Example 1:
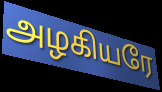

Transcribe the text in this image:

அழகியரே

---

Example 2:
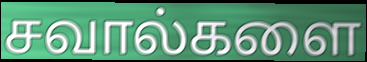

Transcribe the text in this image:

சவால்களை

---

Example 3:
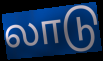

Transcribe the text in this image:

லாடு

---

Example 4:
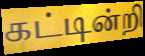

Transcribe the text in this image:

கட்டின்றி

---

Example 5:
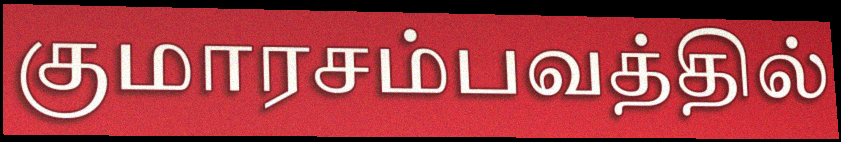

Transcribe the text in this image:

குமாரசம்பவத்தில்